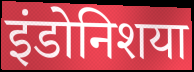
इंडोनिशया